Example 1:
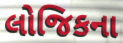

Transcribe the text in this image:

લોજિકના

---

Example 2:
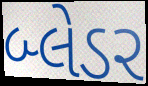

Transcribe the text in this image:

બ્લેડર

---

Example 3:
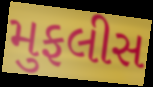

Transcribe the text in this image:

મુફલીસ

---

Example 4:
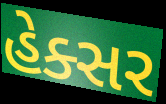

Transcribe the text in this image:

હેક્સર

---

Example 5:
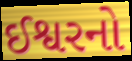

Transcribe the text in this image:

ઈશ્વરનો